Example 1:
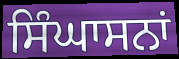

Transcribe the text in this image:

ਸਿੰਘਾਸਨਾਂ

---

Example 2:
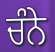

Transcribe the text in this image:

ਚੰਨੇ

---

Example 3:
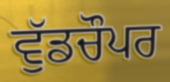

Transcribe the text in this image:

ਵੁੱਡਚੌਪਰ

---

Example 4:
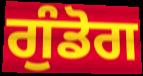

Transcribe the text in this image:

ਗੁੰਡੋਗ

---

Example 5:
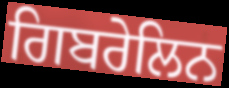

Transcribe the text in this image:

ਗਿਬਰੇਲਿਨ